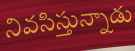
నివసిస్తున్నాడు